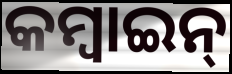
କମ୍ବାଇନ୍